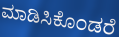
ಮಾಡಿಸಿಕೊಂಡರೆ